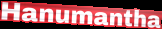
Hanumantha